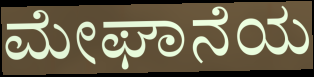
ಮೇಘಾನೆಯ